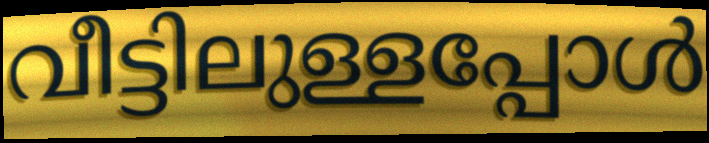
വീട്ടിലുള്ളപ്പോൾ